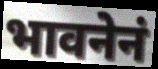
भावनेनं